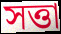
সত্তা